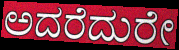
ಅದರೆದುರೇ